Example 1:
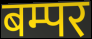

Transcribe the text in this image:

बम्पर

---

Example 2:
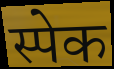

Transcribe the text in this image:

स्पेक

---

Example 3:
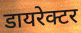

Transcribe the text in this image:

डायरेक्टर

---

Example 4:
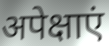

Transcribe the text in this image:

अपेक्षाएं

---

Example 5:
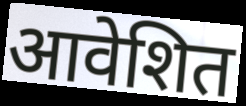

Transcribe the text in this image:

आवेशित